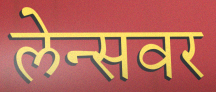
लेन्सवर